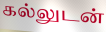
கல்லுடன்